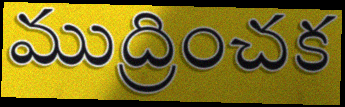
ముద్రించక